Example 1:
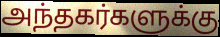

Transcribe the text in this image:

அந்தகர்களுக்கு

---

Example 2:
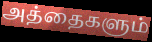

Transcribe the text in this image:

அத்தைகளும்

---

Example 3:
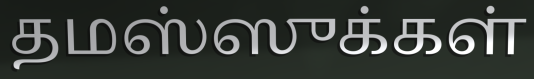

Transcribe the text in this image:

தமஸ்ஸுக்கள்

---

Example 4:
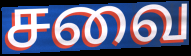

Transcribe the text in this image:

சவை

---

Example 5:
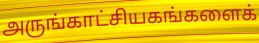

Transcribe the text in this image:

அருங்காட்சியகங்களைக்